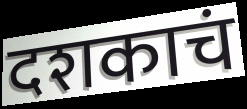
दशकाचं